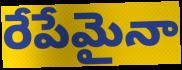
రేపేమైనా